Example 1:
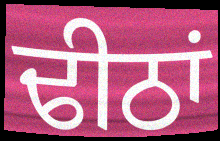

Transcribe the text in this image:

ਢੀਠਾਂ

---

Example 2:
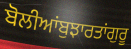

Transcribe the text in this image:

ਬੋਲੀਆਂਬੁਝਾਰਤਾਂਗੁਰੂ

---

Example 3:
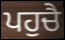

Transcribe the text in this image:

ਪਹੁਚੈ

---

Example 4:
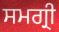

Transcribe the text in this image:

ਸਮਗ੍ਰੀ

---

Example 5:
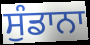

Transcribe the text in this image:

ਸੁੰਡਾਨਾ